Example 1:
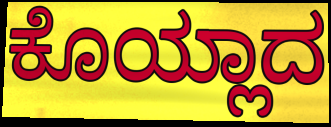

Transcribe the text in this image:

ಕೊಯ್ಲಾದ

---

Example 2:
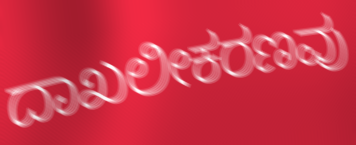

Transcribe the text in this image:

ದಾಖಲೀಕರಣವು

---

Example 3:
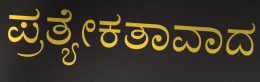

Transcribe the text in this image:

ಪ್ರತ್ಯೇಕತಾವಾದ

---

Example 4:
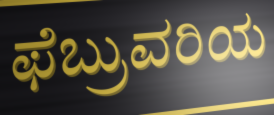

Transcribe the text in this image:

ಫೆಬ್ರುವರಿಯ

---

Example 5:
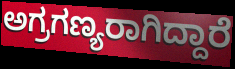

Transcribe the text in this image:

ಅಗ್ರಗಣ್ಯರಾಗಿದ್ದಾರೆ